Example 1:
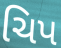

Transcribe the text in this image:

ચિપ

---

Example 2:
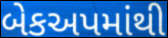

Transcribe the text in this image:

બેકઅપમાંથી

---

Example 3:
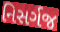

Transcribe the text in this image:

નિસર્ગજ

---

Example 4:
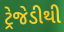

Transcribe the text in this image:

ટ્રેજેડીથી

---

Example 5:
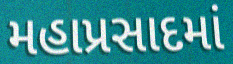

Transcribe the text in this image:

મહાપ્રસાદમાં